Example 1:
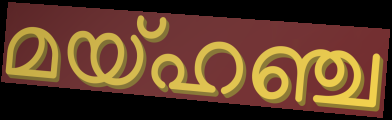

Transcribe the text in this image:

മയ്ഹഞ്ച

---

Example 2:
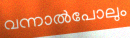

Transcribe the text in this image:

വന്നാൽപോലും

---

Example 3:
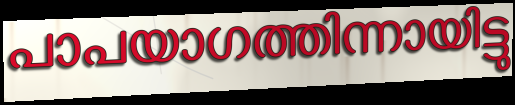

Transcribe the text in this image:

പാപയാഗത്തിന്നായിട്ടു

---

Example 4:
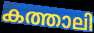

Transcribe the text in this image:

കത്താലി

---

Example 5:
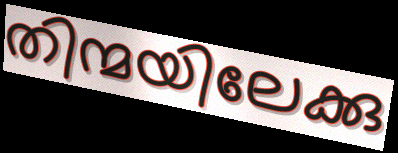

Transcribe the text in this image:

തിന്മയിലേക്കു